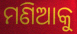
ମଣିଆକୁ